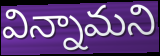
విన్నామని